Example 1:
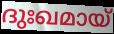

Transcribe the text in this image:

ദുഃഖമായ്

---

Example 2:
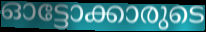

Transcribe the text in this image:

ഓട്ടോക്കാരുടെ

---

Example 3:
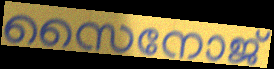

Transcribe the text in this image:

സൈനോജ്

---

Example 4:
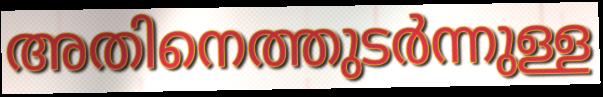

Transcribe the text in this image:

അതിനെത്തുടർന്നുള്ള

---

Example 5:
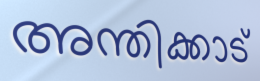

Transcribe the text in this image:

അന്തിക്കാട്